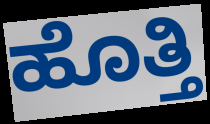
ಹೊತ್ತಿ